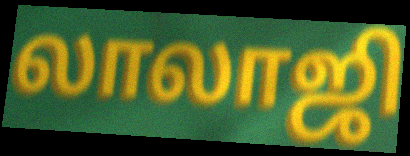
லாலாஜி